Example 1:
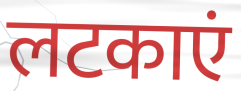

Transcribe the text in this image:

लटकाएं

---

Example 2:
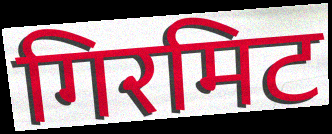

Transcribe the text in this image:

गिरमिट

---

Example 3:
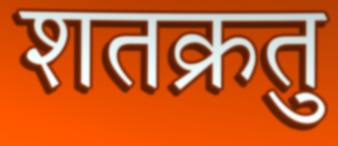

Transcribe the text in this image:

शतक्रतु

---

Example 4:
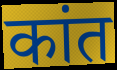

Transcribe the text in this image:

कांत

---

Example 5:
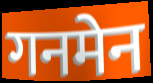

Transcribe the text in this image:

गनमेन